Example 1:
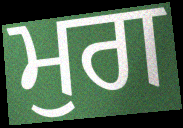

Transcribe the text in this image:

ਮੁਗ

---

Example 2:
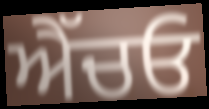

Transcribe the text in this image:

ਐੱਚਓ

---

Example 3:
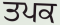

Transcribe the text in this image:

ਤਪਕ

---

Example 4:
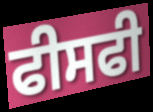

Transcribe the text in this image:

ਫੀਸਫੀ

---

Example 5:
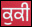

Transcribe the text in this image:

ਕੁਕੀ